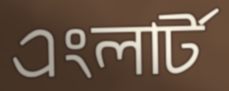
এংলার্ট